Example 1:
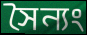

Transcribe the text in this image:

সৈন্যং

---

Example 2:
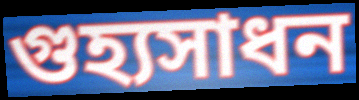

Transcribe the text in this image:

গুহ্যসাধন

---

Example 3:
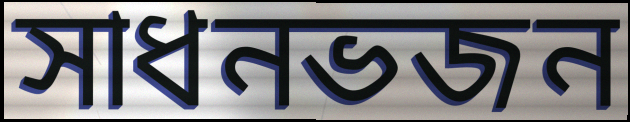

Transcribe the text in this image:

সাধনভজন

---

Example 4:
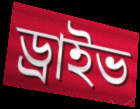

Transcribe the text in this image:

ড্রাইভ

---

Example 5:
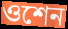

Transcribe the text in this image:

ওশেন